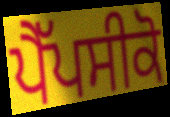
ਪੈੱਪਸੀਕੋ